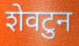
शेवटुन